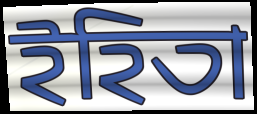
ইহিতা